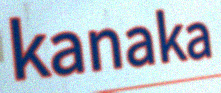
kanaka